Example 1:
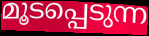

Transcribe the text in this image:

മൂടപ്പെടുന്ന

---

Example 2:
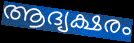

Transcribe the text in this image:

ആദ്യക്ഷരം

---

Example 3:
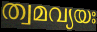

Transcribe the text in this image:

ത്വമവ്യയഃ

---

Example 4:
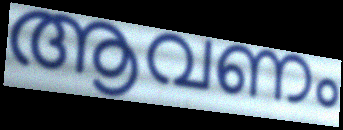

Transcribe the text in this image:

ആവണം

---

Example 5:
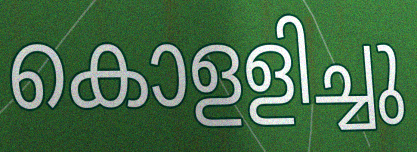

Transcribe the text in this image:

കൊളളിച്ചു